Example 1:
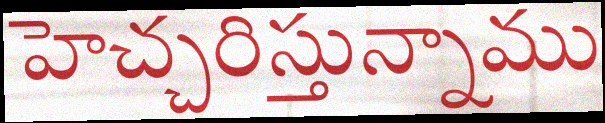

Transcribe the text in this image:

హెచ్చరిస్తున్నాము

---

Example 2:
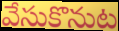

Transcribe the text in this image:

వేసుకొనుట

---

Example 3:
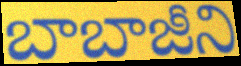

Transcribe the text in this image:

బాబాజీని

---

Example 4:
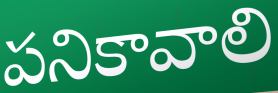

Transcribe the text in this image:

పనికావాలి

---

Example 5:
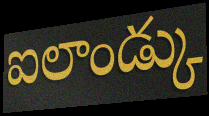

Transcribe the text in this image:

ఐలాండ్కు